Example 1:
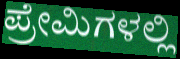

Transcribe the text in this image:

ಪ್ರೇಮಿಗಳಲ್ಲಿ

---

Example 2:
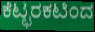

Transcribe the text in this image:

ಕೆಟ್ಟರಕಟೆಂದ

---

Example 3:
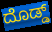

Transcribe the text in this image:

ದೊಡ್ಡ್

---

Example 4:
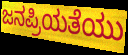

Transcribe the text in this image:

ಜನಪ್ರಿಯತೆಯು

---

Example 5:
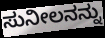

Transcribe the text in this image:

ಸುನೀಲನನ್ನು